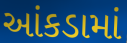
આંકડામાં